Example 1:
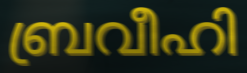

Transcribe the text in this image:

ബ്രവീഹി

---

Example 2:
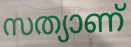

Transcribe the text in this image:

സത്യാണ്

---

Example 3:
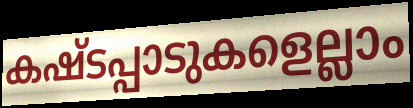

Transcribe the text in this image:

കഷ്ടപ്പാടുകളെല്ലാം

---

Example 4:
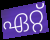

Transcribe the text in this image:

ഏറ്റ്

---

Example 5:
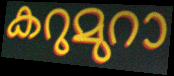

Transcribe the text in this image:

കറുമുറാ